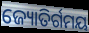
ଜ୍ୟୋତିର୍ଗମୟ